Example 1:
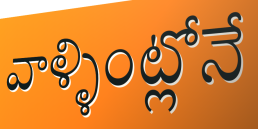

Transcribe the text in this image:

వాళ్ళింట్లోనే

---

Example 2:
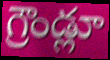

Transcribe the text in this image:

గ్రౌండ్లూ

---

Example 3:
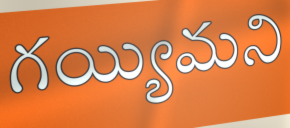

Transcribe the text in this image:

గయ్యిమని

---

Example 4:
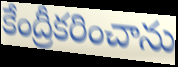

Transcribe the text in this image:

కేంద్రీకరించాను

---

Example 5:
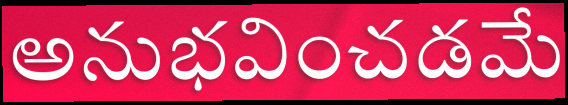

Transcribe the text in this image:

అనుభవించడమే